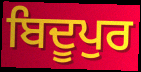
ਬਿਦੂਪੁਰ